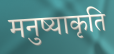
मनुष्याकृति